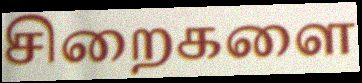
சிறைகளை